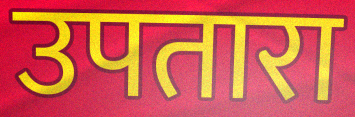
उपतारा